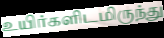
உயிர்களிடமிருந்து